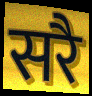
सरै